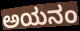
ಅಯನಂ